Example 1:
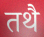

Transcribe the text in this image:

तथै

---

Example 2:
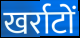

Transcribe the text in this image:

खर्राटों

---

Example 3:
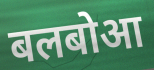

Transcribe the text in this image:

बलबोआ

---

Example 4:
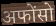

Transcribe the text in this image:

अफोंसो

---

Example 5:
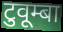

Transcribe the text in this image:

टुवूम्बा